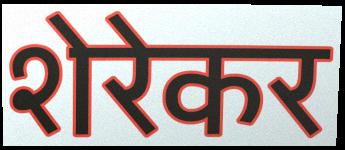
शेरेकर